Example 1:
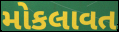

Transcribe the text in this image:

મોકલાવત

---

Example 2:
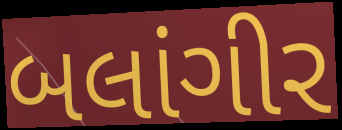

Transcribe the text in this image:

બલાંગીર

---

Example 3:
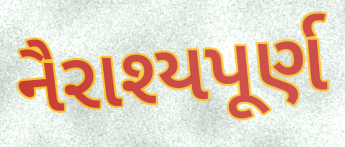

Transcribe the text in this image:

નૈરાશ્યપૂર્ણ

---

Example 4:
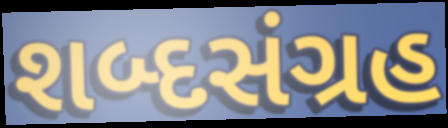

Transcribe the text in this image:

શબ્દસંગ્રહ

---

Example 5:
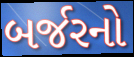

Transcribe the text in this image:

બર્જરનો